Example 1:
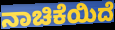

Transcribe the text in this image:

ನಾಚಿಕೆಯಿದೆ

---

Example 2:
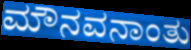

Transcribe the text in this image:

ಮೌನವನಾಂತು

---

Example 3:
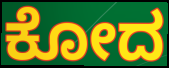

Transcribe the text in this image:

ಕೋದ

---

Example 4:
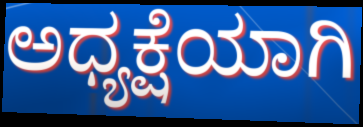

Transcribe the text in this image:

ಅಧ್ಯಕ್ಷೆಯಾಗಿ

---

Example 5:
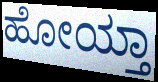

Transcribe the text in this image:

ಹೋಯ್ತಾ